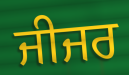
ਜੀਜਰ